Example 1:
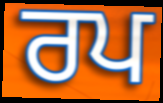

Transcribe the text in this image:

ਰਪ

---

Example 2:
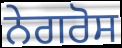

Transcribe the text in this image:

ਨੇਗਰੋਸ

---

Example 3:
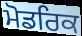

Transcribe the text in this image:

ਮੋਡਰਿਕ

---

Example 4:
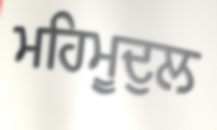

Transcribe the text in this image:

ਮਹਿਮੂਦੁਲ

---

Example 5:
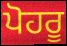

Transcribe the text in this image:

ਪੋਹਰੂ